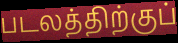
படலத்திற்குப்